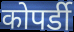
कोपर्डी